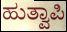
ಹುತ್ವಾಪಿ